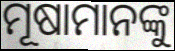
ମୂଷାମାନଙ୍କୁ